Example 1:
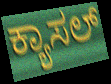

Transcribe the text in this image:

ಕ್ಯಾಸಲ್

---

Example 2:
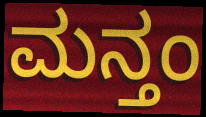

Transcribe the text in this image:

ಮನ್ತಂ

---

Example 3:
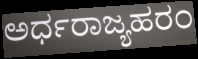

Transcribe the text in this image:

ಅರ್ಧರಾಜ್ಯಹರಂ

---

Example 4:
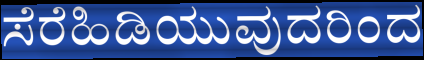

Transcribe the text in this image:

ಸೆರೆಹಿಡಿಯುವುದರಿಂದ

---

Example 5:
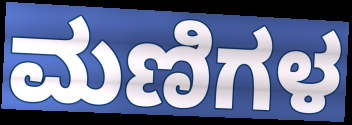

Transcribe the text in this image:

ಮಣಿಗಳ